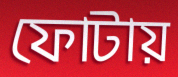
ফোটায়